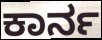
ಕಾರ್ನ